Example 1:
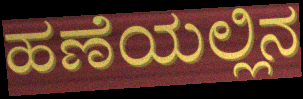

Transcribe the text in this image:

ಹಣೆಯಲ್ಲಿನ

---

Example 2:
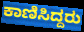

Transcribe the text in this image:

ಕಾಣಿಸಿದ್ದರು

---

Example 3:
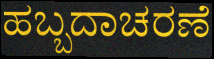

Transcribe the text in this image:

ಹಬ್ಬದಾಚರಣೆ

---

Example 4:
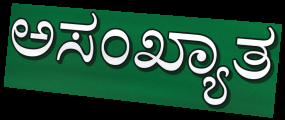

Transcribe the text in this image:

ಅಸಂಖ್ಯಾತ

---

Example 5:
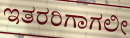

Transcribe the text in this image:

ಇತರರಿಗಾಗಲೀ